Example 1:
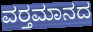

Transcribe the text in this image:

ವರ‍್ತಮಾನದ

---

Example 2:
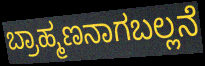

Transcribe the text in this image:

ಬ್ರಾಹ್ಮಣನಾಗಬಲ್ಲನೆ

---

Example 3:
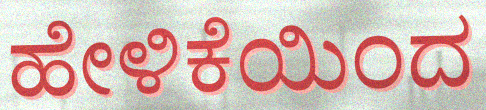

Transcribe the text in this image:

ಹೇಳಿಕೆಯಿಂದ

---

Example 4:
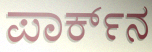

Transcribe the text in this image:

ಪಾರ್ಕ್‌ನ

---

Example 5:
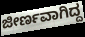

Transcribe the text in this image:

ಜೀರ್ಣವಾಗಿದ್ದ